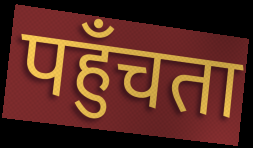
पहुँचता